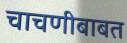
चाचणीबाबत